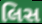
લિસ